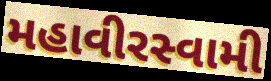
મહાવીરસ્વામી